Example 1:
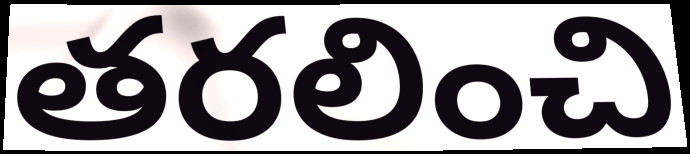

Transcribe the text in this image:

తరలించి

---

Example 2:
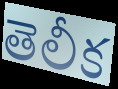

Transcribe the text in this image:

తెలీక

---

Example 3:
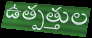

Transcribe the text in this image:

ఉత్పత్తుల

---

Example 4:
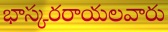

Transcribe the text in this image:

భాస్కరరాయలవారు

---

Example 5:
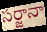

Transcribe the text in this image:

సర్జానా